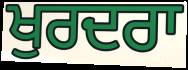
ਖੁਰਦਰਾ